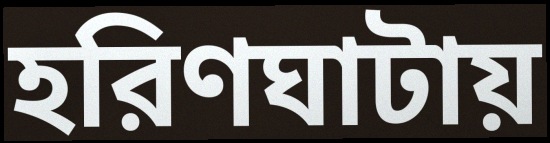
হরিণঘাটায়